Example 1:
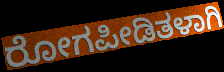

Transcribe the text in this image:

ರೋಗಪೀಡಿತಳಾಗಿ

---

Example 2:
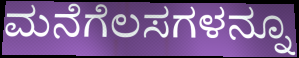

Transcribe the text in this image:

ಮನೆಗೆಲಸಗಳನ್ನೂ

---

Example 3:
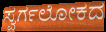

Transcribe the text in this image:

ಸ್ವರ್ಗಲೋಕದ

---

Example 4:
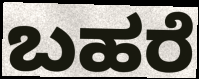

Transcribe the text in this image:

ಬಹರೆ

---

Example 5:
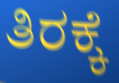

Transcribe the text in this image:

ತಿರಕ್ಕೆ